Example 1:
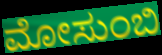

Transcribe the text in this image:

ಮೋಸುಂಬಿ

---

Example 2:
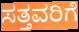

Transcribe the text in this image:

ಸತ್ತವರಿಗೆ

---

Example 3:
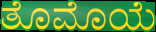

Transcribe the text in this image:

ತೊಮೊಯೆ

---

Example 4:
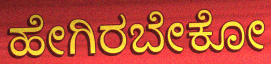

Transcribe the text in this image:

ಹೇಗಿರಬೇಕೋ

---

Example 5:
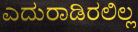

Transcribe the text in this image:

ಎದುರಾಡಿರಲಿಲ್ಲ